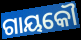
ଗାୟକୌ